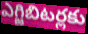
ఎగ్జిబిటర్లకు